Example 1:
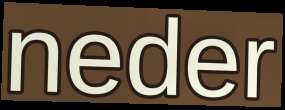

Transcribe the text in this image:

neder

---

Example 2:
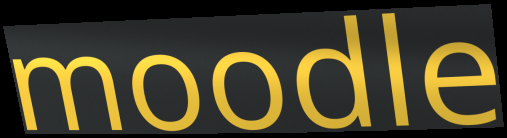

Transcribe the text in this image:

moodle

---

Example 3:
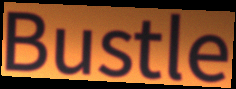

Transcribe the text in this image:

Bustle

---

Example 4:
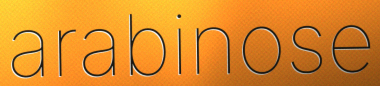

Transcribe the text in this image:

arabinose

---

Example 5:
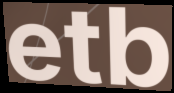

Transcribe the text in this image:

etb